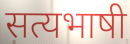
सत्यभाषी